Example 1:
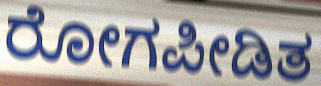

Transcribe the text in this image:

ರೋಗಪೀಡಿತ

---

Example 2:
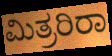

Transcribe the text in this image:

ಮಿತ್ರರಿರಾ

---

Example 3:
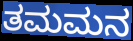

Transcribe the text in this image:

ತಮಮನ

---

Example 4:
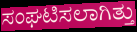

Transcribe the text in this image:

ಸಂಘಟಿಸಲಾಗಿತ್ತು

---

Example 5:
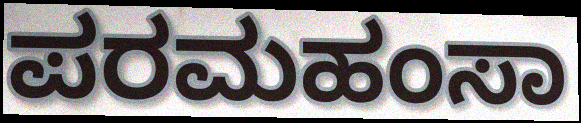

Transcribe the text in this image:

ಪರಮಹಂಸಾ